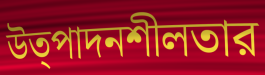
উত্পাদনশীলতার